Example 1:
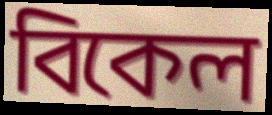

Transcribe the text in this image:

বিকেল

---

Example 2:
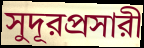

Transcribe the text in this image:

সুদূরপ্রসারী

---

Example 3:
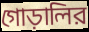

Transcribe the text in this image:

গোড়ালির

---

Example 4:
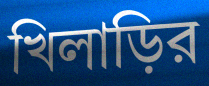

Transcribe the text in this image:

খিলাড়ির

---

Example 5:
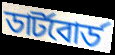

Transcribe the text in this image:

ডার্টবোর্ড